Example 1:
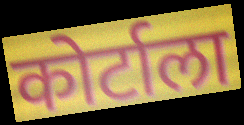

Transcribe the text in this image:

कोर्टाला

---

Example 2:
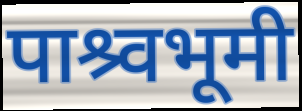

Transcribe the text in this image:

पाश्र्वभूमी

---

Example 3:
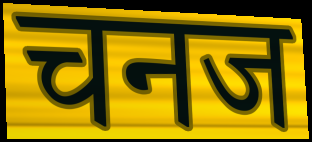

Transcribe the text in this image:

चनज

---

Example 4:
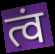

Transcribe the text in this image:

त्वं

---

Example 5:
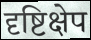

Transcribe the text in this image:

दृष्टिक्षेप